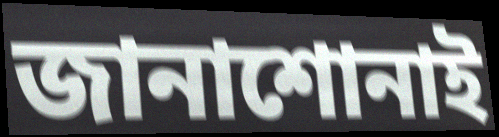
জানাশোনাই